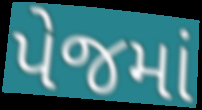
પેજમાં